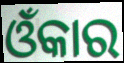
ଓଁକାର